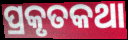
ପ୍ରକୃତକଥା